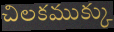
చిలకముక్కు